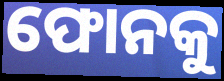
ଫୋନକୁ